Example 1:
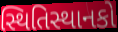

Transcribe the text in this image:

સ્થિતિસ્થાનકો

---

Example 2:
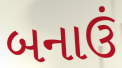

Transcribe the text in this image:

બનાઉં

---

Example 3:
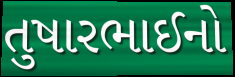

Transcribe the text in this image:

તુષારભાઈનો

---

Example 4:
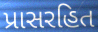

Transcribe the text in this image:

પ્રાસરહિત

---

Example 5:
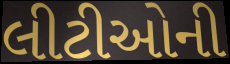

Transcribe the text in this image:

લીટીઓની